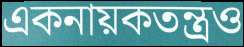
একনায়কতন্ত্রও